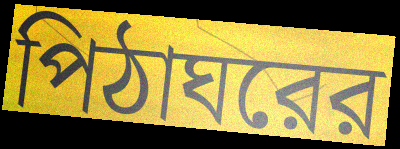
পিঠাঘরের